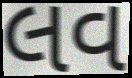
લવ